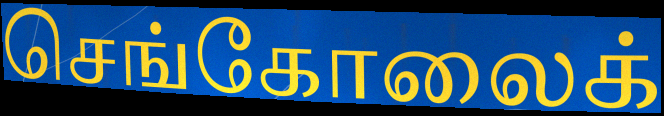
செங்கோலைக்